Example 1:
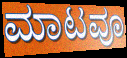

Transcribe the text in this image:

ಮಾಟವೂ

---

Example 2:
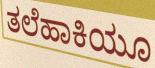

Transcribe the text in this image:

ತಲೆಹಾಕಿಯೂ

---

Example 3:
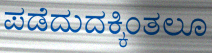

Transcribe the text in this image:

ಪಡೆದುದಕ್ಕಿಂತಲೂ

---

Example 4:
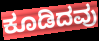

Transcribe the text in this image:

ಕೂಡಿದವು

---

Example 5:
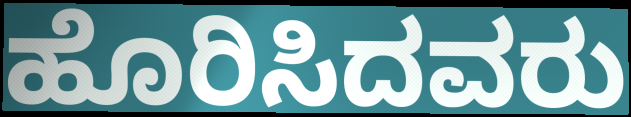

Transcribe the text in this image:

ಹೊರಿಸಿದವರು